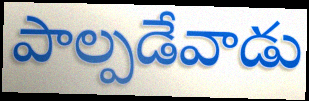
పాల్పడేవాడు